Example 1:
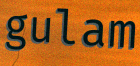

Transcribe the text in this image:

gulam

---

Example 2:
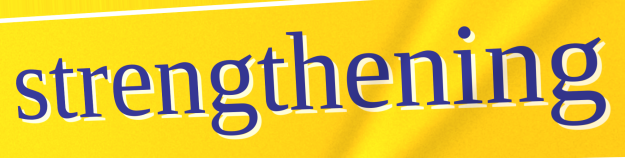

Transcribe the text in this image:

strengthening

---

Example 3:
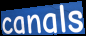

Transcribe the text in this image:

canals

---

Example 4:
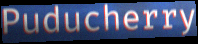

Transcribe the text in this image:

Puducherry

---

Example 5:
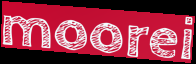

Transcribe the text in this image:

moorei